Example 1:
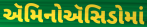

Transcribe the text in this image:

ઍમિનોઍસિડોમાં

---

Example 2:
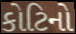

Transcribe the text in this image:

કોટિનો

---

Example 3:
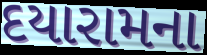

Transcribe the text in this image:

દયારામના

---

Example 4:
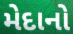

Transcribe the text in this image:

મેદાનો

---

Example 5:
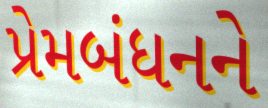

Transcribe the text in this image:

પ્રેમબંધનને